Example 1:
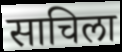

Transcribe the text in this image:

साचिला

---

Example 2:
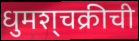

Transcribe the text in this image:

धुमश्चक्रीची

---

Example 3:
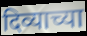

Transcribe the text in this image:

दिव्याच्या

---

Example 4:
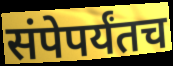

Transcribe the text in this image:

संपेपर्यंतच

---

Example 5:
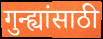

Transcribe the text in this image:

गुन्ह्यांसाठी